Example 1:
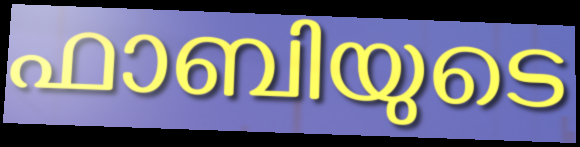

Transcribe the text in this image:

ഫാബിയുടെ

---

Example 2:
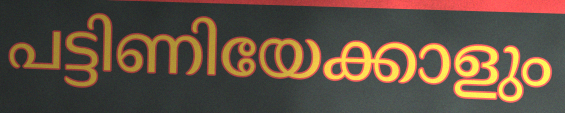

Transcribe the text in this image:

പട്ടിണിയേക്കാളും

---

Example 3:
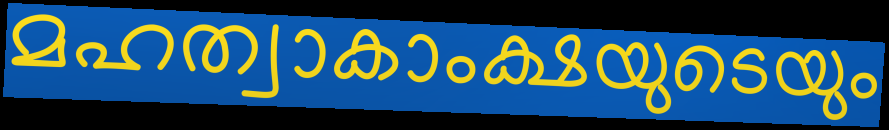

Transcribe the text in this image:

മഹത്വാകാംക്ഷയുടെയും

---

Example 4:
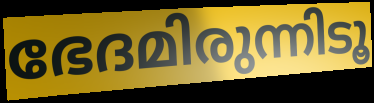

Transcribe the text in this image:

ഭേദമിരുന്നിടൂ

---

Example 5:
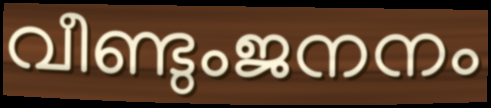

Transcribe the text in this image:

വീണ്ടുംജനനം